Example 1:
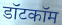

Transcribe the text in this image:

डॉटकॉम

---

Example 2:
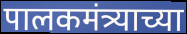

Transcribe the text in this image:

पालकमंत्र्याच्या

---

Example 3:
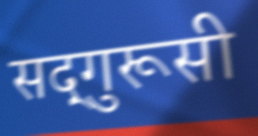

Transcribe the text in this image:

सद्‍गुरूसी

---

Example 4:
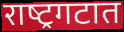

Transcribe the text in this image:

राष्ट्रगटात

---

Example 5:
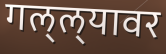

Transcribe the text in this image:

गल्ल्यावर